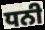
ਧਨੀ